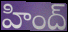
హింద్